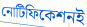
নোটিফিকেশনই